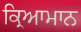
ਕ੍ਰਿਆਮਾਨ